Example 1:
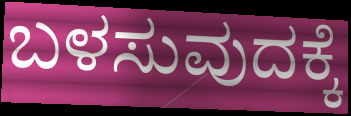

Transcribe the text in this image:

ಬಳಸುವುದಕ್ಕೆ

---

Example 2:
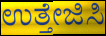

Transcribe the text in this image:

ಉತ್ತೇಜಿಸಿ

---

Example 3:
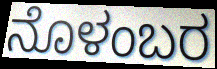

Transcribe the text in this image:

ನೊಳಂಬರ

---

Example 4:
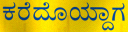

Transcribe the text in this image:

ಕರೆದೊಯ್ದಾಗ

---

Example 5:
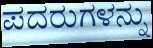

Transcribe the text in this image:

ಪದರುಗಳನ್ನು